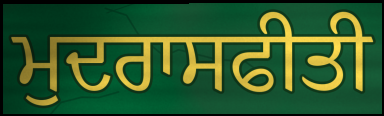
ਮੁਦਰਾਸਫੀਤੀ